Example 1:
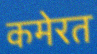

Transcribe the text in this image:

कमेरत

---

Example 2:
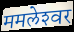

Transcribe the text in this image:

ममलेश्वर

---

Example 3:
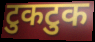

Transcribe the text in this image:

टुकटुक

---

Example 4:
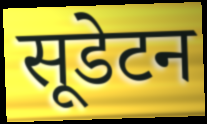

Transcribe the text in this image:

सूडेटन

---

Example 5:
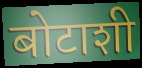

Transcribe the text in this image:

बोटाशी